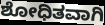
ಶೋಧಿತವಾಗಿ